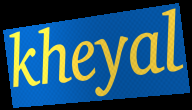
kheyal